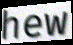
hew